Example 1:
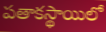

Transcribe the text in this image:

పతాకస్థాయిలో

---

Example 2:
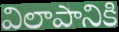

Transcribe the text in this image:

విలాపానికి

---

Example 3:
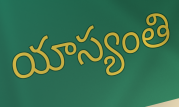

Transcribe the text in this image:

యాస్యంతి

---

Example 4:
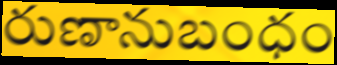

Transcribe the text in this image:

రుణానుబంధం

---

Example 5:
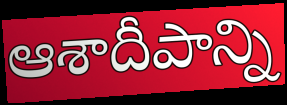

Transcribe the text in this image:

ఆశాదీపాన్ని